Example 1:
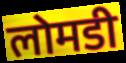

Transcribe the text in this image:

लोमडी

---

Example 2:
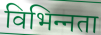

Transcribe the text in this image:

विभिन्‍नता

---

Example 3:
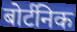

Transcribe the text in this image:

बोर्टनिक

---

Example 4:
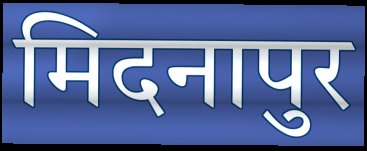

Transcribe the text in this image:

मिदनापुर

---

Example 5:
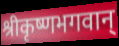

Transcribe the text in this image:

श्रीकृष्णभगवान्